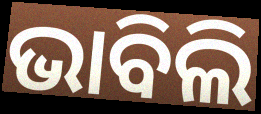
ଭାବିଲି